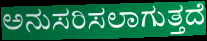
ಅನುಸರಿಸಲಾಗುತ್ತದೆ